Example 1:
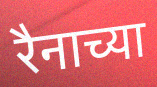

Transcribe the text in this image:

रैनाच्या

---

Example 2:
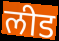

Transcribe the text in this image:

लीड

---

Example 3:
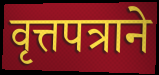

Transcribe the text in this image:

वृत्तपत्राने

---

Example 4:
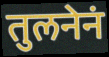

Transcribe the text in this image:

तुलनेनं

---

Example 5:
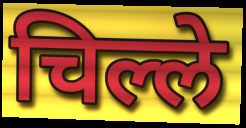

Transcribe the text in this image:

चिल्ले